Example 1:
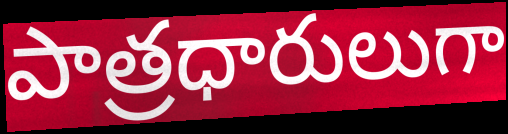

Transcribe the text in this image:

పాత్రధారులుగా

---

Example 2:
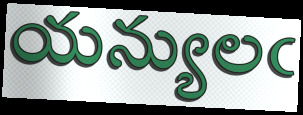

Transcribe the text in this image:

యన్యులఁ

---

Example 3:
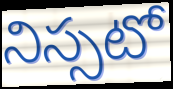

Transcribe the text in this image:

నిస్సటో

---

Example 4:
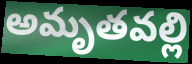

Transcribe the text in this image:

అమృతవల్లి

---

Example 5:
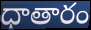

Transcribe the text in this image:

ధాతారం